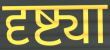
दृष्ट्या